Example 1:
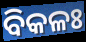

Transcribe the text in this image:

ବିକଳଃ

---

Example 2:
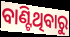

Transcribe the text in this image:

ବାଣ୍ଟିଥିବାରୁ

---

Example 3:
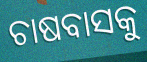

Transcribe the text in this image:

ଚାଷବାସକୁ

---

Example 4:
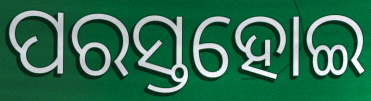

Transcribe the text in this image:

ପରସ୍ତହୋଇ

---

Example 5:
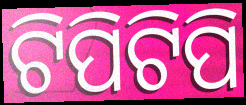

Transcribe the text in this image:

ଟିପିଟିପି